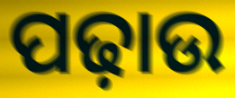
ପଢ଼ାଉ